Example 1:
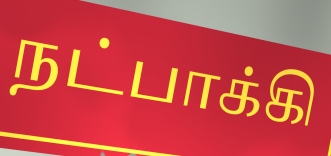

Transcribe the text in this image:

நட்பாக்கி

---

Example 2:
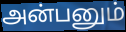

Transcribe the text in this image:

அன்பனும்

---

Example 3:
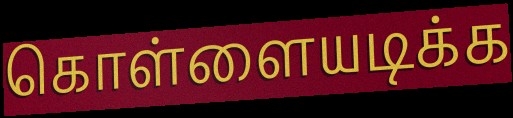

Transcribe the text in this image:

கொள்ளையடிக்க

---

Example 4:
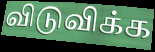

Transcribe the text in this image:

விடுவிக்க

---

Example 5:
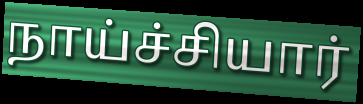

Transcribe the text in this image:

நாய்ச்சியார்